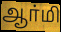
ஆர்மி